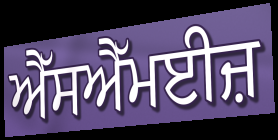
ਐੱਸਐੱਮਈਜ਼